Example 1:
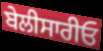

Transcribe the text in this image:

ਬੇਲੀਸਾਰੀਓ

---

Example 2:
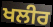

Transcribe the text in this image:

ਖਲੀਰ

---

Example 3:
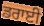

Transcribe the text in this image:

ਡਰਾਈ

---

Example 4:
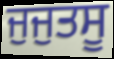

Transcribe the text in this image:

ਜੁਜੁਤਸੂ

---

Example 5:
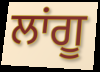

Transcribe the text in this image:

ਲਾਂਗੂ